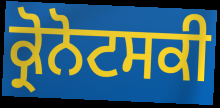
ਕ੍ਰੋਨੋਟਸਕੀ